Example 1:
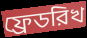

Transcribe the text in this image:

ফ্রেডরিখ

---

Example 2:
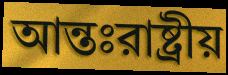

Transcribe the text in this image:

আন্তঃরাষ্ট্রীয়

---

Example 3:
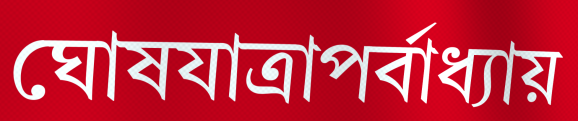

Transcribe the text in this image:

ঘোষযাত্রাপর্বাধ্যায়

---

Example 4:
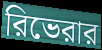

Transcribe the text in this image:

রিভেরার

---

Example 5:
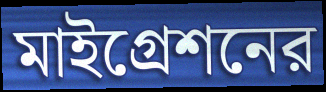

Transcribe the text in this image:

মাইগ্রেশনের